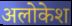
अलोकेश